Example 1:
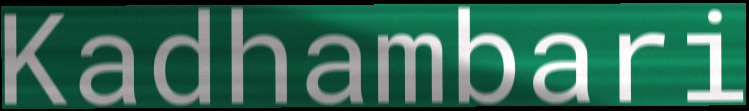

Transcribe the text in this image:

Kadhambari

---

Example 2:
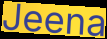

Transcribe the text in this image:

Jeena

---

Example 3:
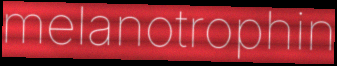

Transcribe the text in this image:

melanotrophin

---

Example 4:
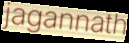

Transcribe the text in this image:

jagannath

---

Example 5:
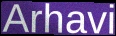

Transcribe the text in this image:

Arhavi